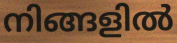
നിങ്ങളിൽ